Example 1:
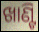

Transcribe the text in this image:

ଖାଣ୍ଟି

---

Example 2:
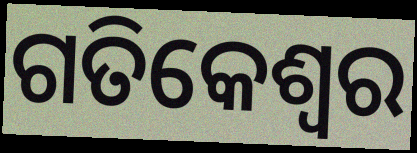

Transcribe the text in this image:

ଗତିକେଶ୍ବର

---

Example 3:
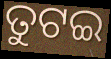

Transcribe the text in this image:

ତୁଟଇ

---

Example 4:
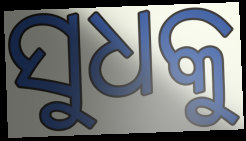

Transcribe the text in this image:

ସୁଧକୁ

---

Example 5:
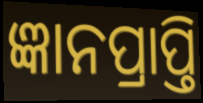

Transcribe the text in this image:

ଜ୍ଞାନପ୍ରାପ୍ତି